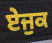
ਏਜੁਕ